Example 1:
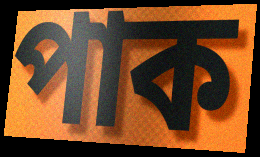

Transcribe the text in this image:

পাক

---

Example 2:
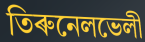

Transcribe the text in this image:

তিৰুনেলভেলী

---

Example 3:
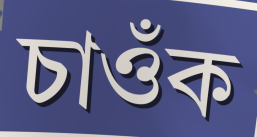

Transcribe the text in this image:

চাওঁক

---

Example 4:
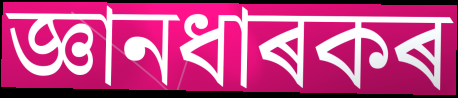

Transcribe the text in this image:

জ্ঞানধাৰকৰ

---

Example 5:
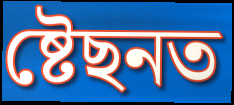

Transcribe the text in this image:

ষ্টেছনত